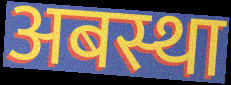
अबस्था